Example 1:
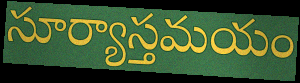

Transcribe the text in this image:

సూర్యాస్తమయం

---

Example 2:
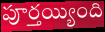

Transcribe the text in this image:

పూర్తయ్యింది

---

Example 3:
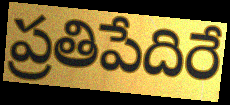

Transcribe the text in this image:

ప్రతిపేదిరే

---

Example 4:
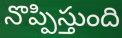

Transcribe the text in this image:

నొప్పిస్తుంది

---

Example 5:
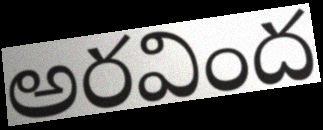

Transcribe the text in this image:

అరవింద